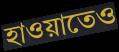
হাওয়াতেও